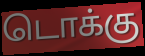
டொக்கு